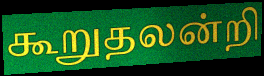
கூறுதலன்றி